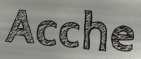
Acche